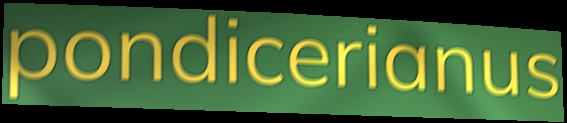
pondicerianus